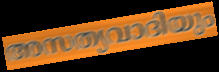
അസത്യവാദിയും